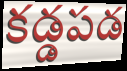
కడ్డపడ